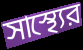
সাস্থ্যের